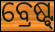
ବ୍ରେଷ୍ଟ୍